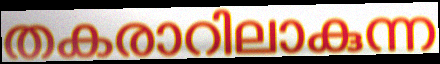
തകരാറിലാകുന്ന